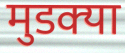
मुडक्या